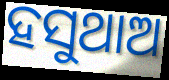
ହସୁଥାଅ